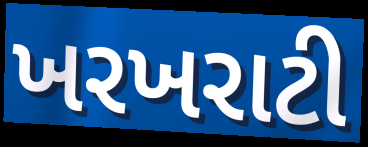
ખરખરાટી